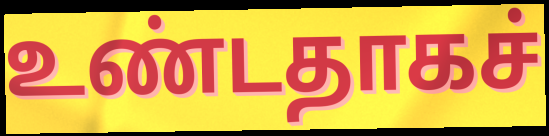
உண்டதாகச்